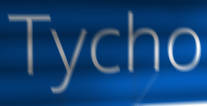
Tycho